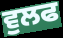
ਵੁਲਫ